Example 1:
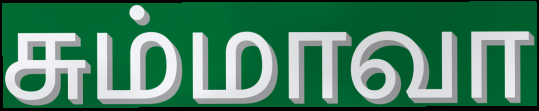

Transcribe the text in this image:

சும்மாவா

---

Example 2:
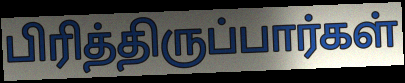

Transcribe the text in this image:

பிரித்திருப்பார்கள்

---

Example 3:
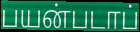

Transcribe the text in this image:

பயன்படாப்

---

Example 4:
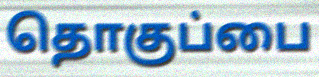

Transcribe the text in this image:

தொகுப்பை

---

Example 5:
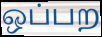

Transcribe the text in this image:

ஒப்பற